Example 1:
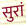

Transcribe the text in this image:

सुरां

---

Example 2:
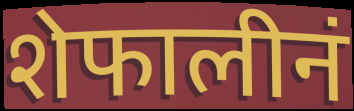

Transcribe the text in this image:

शेफालीनं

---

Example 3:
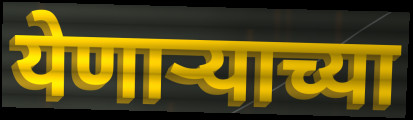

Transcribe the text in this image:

येणाऱ्याच्या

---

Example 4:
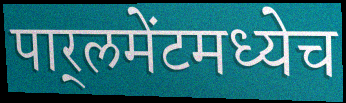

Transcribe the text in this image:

पार्लमेंटमध्येच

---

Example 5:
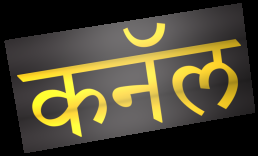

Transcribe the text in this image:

कनॅल